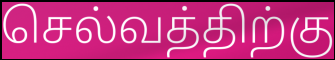
செல்வத்திற்கு